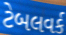
ટેબલવર્ક